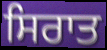
ਸਿਰਾਤ